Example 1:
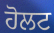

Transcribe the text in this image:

ਹੋਲਟ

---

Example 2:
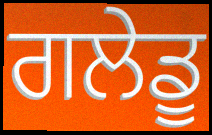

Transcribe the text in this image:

ਗਲੇਡੂ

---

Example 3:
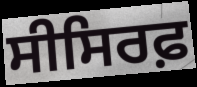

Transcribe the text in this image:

ਸੀਸਿਰਫ਼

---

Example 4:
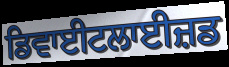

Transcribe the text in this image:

ਡਿਵਾਈਟਲਾਈਜ਼ਡ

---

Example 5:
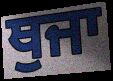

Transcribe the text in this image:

ਥੁਜਾ